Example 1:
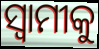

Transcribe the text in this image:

ସ୍ବାମୀକୁ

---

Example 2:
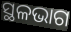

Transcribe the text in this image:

ସ୍ଥଳଭାଗ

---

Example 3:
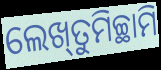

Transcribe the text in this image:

ଲେଖ୍‌ତୁମିଚ୍ଛାମି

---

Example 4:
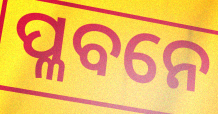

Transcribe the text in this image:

ପ୍ଳବନେ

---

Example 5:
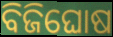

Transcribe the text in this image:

ବିଜିଘୋଷ